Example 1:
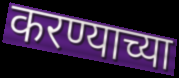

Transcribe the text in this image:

करण्याच्या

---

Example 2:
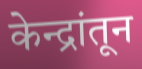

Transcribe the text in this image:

केन्द्रांतून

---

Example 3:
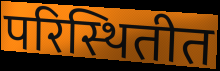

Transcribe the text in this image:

परिस्थितीत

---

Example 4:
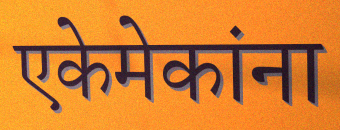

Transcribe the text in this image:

एकेमेकांना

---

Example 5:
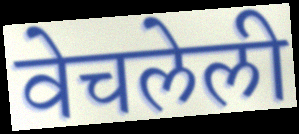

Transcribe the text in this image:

वेचलेली